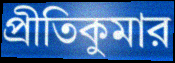
প্রীতিকুমার